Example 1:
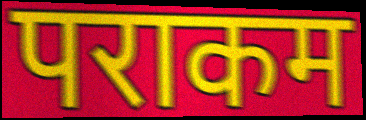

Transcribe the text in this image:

पराकम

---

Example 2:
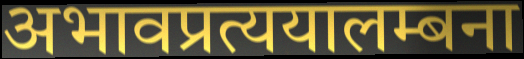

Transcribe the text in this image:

अभावप्रत्ययालम्बना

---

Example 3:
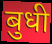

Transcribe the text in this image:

बुधी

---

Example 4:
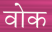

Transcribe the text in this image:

वोक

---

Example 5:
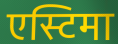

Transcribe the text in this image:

एस्टिमा